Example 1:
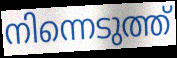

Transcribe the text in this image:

നിന്നെടുത്ത്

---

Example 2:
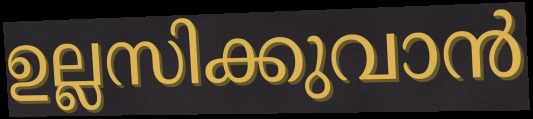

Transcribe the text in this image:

ഉല്ലസിക്കുവാൻ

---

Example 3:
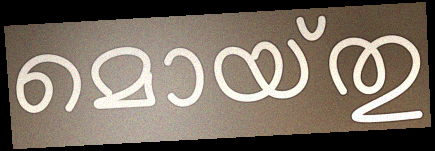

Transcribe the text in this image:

മൊയ്‌തു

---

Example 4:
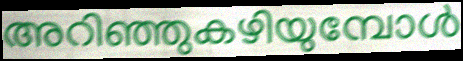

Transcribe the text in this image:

അറിഞ്ഞുകഴിയുമ്പോൾ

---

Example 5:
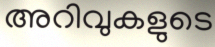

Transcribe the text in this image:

അറിവുകളുടെ